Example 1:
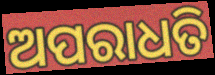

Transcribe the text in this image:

ଅପରାଧତି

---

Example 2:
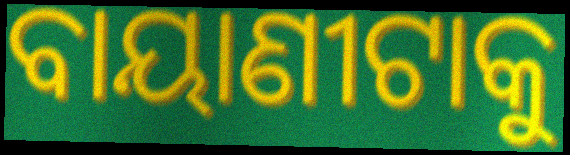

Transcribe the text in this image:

ବାୟାଣୀଟାକୁ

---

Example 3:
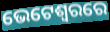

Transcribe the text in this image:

ଭେଟେଶ୍ୱରରେ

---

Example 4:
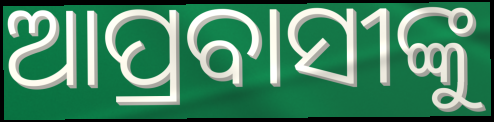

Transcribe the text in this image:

ଆପ୍ରବାସୀଙ୍କୁ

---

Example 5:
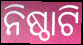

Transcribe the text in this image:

ନିଷ୍ଠାଟି